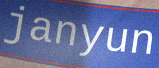
janyun